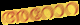
അറോറ